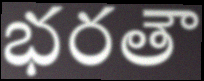
భరతౌ